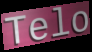
Telo